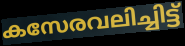
കസേരവലിച്ചിട്ട്